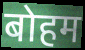
बोहम